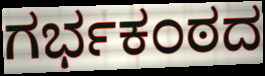
ಗರ್ಭಕಂಠದ